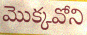
మొక్కవోని